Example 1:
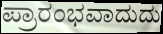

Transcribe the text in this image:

ಪ್ರಾರಂಭವಾದುದು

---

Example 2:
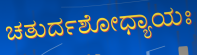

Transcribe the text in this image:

ಚತುರ್ದಶೋಧ್ಯಾಯಃ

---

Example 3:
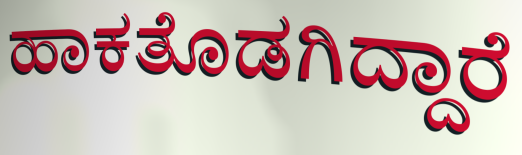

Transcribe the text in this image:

ಹಾಕತೊಡಗಿದ್ದಾರೆ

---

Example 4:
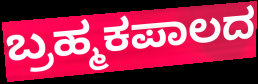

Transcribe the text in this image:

ಬ್ರಹ್ಮಕಪಾಲದ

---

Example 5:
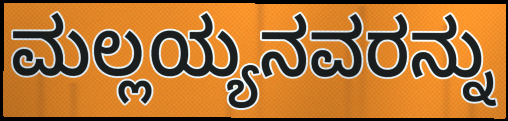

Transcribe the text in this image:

ಮಲ್ಲಯ್ಯನವರನ್ನು